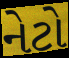
નેટો